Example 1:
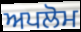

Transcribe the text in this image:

ਅਪਲੋਮ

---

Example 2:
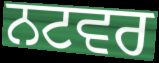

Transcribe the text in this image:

ਨਟਵਰ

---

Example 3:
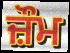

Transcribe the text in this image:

ਜ਼ੌਮ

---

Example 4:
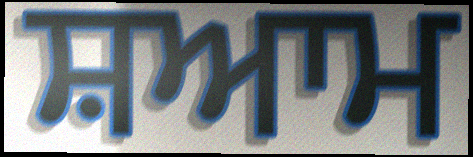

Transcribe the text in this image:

ਸ਼ਆਮ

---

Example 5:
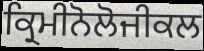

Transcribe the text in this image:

ਕ੍ਰਿਮੀਨੋਲੋਜੀਕਲ